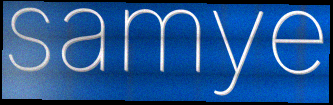
samye